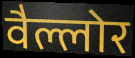
वैल्लोर